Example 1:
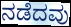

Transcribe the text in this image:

ನಡೆದವು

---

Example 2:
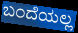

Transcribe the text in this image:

ಬಂದೆಯಲ್ಲ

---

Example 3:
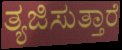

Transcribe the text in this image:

ತ್ಯಜಿಸುತ್ತಾರೆ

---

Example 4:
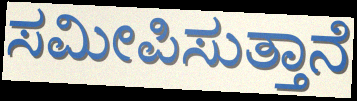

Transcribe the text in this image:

ಸಮೀಪಿಸುತ್ತಾನೆ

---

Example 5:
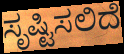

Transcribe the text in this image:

ಸೃಷ್ಟಿಸಲಿದೆ